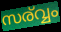
സര്വ്വം